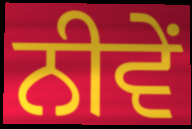
ਨੀਵੇਂ